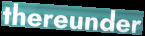
thereunder